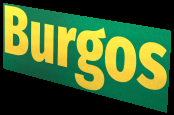
Burgos